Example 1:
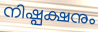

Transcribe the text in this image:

നിഷ്പക്ഷനും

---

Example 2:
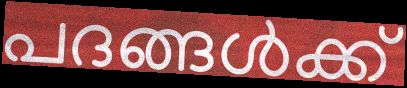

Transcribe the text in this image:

പദങ്ങൾക്ക്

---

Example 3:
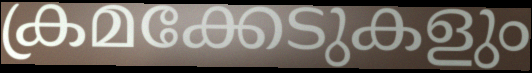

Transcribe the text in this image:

ക്രമക്കേടുകളും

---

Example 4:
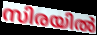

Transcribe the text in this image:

സിരയിൽ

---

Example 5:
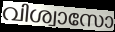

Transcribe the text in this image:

വിശ്വാസോ